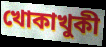
খোকাখুকী